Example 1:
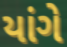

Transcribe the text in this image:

યાંગે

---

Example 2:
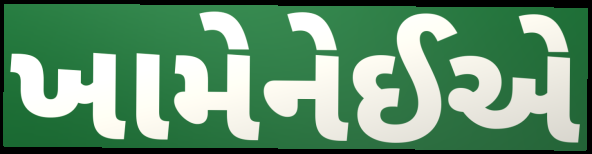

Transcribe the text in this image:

ખામેનેઈએ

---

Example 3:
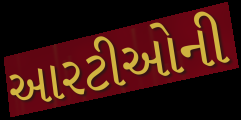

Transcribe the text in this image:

આરટીઓની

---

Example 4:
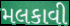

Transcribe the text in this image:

મલકાવી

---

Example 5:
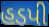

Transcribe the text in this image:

હડપી